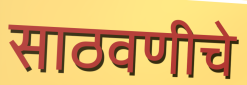
साठवणीचे